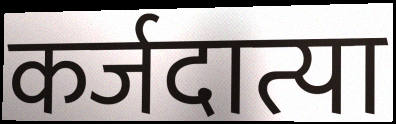
कर्जदात्या